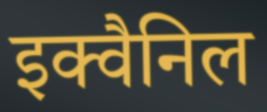
इक्वैनिल